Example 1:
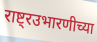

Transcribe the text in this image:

राष्ट्रउभारणीच्या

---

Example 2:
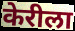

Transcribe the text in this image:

केरीला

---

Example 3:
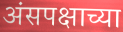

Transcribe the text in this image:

अंसपक्षाच्या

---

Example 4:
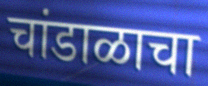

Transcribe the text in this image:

चांडाळाचा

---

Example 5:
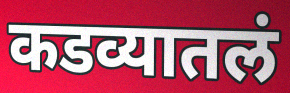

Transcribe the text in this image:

कडव्यातलं